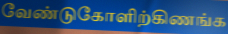
வேண்டுகோளிற்கிணங்க